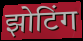
झोटिंग